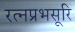
रत्नप्रभसूरि